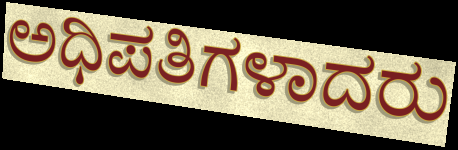
ಅಧಿಪತಿಗಳಾದರು